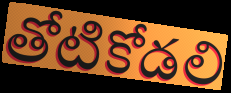
తోటికోడలి